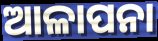
ଆଳାପନା